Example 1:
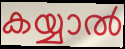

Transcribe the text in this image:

കയ്യാൽ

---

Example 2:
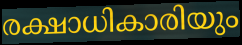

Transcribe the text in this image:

രക്ഷാധികാരിയും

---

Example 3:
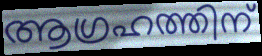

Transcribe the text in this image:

ആഗ്രഹത്തിന്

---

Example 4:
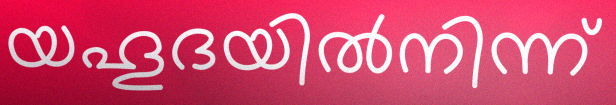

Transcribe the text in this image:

യഹൂദയിൽനിന്ന്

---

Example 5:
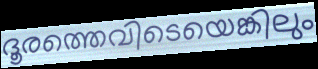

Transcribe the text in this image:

ദൂരത്തെവിടെയെങ്കിലും